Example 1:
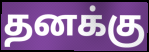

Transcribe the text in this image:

தனக்கு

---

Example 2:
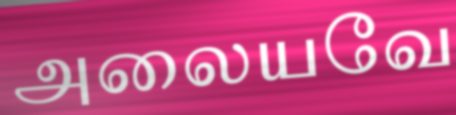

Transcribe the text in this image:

அலையவே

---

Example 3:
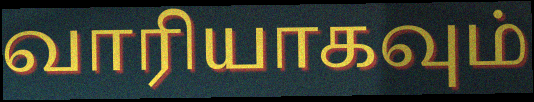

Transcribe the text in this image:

வாரியாகவும்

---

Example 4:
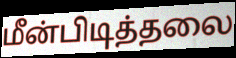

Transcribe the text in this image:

மீன்பிடித்தலை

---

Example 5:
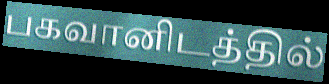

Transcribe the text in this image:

பகவானிடத்தில்